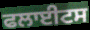
ਫਲਾਈਟਸ